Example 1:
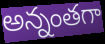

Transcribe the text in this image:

అన్నంతగా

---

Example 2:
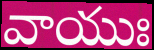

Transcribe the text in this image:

వాయుః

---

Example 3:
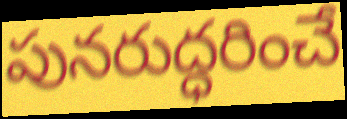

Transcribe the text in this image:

పునరుద్ధరించే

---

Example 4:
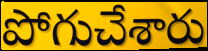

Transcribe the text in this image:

పోగుచేశారు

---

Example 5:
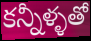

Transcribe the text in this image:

కన్నీళ్ళతో